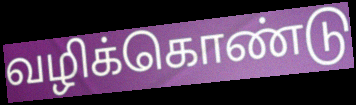
வழிக்கொண்டு